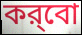
কর্‌বো